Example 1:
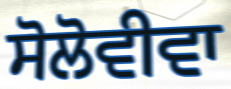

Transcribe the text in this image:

ਸੋਲੋਵੀਵਾ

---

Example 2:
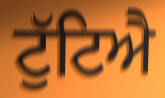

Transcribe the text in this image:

ਟੁੱਟਿਐ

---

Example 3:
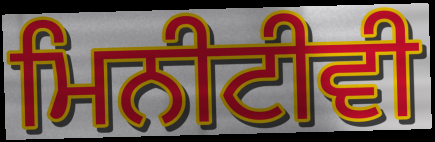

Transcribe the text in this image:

ਮਿਨੀਟੀਵੀ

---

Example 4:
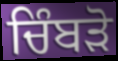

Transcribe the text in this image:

ਚਿੰਬੜੋ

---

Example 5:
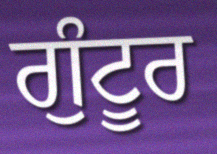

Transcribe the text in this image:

ਗੁੰਟੂਰ